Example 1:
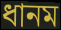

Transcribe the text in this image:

ধানম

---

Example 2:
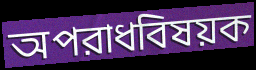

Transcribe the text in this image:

অপরাধবিষয়ক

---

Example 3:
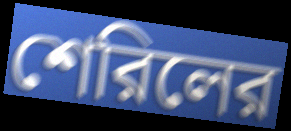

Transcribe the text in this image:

শেরিলের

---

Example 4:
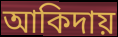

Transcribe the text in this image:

আকিদায়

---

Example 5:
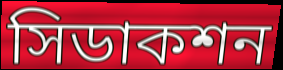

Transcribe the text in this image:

সিডাকশন